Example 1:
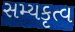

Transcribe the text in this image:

સમ્યકૃત્વ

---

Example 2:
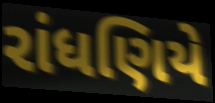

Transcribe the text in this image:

રાંધણિયે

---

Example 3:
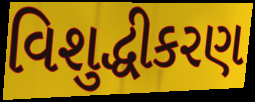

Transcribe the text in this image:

વિશુદ્ધીકરણ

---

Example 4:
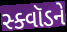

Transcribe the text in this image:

સ્ક્વૉડને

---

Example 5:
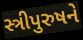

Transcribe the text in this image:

સ્ત્રીપુરુષને